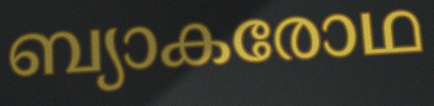
ബ്യാകരോഥ